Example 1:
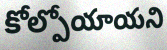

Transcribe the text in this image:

కోల్పోయాయని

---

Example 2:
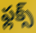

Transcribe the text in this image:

ఫ్లక్స్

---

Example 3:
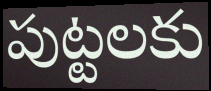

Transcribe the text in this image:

పుట్టలకు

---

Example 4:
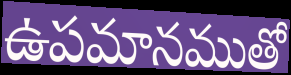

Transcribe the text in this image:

ఉపమానముతో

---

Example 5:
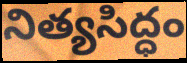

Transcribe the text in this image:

నిత్యసిద్ధం